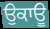
ਉਕਾਊ